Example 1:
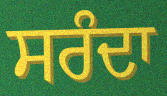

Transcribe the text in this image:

ਸਰੰਦਾ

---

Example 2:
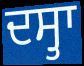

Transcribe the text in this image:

ਦਸ੍ਤਾ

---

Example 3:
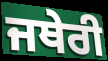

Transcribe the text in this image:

ਜਥੇਰੀ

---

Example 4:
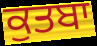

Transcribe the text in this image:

ਕੁਤਬਾ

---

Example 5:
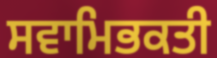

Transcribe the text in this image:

ਸਵਾਮਿਭਕਤੀ